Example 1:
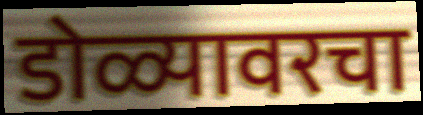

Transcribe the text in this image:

डोळ्यावरचा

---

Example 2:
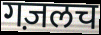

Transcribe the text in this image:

गज़लच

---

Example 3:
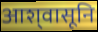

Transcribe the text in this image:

आश्वासूनि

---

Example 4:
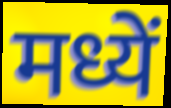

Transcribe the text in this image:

मध्यें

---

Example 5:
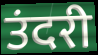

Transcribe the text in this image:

उंदरी